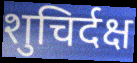
शुचिर्दक्ष